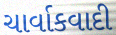
ચાર્વાકવાદી